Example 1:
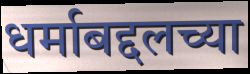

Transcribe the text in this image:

धर्माबद्दलच्या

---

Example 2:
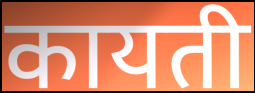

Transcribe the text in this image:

कायती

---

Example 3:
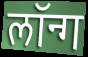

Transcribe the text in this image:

लॉन्ग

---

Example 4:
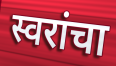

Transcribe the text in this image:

स्वरांचा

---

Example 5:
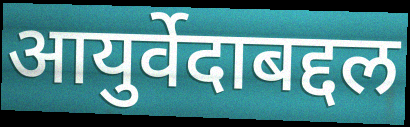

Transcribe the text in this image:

आयुर्वेदाबद्दल